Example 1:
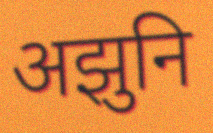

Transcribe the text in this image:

अझुनि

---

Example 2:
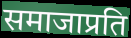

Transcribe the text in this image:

समाजाप्रति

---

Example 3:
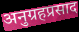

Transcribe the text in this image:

अनुग्रहप्रसाद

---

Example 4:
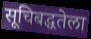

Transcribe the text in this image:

सूचिबद्धतेला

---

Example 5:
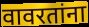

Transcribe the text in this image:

वावरतांना